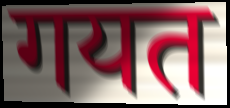
गयत